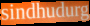
sindhudurg